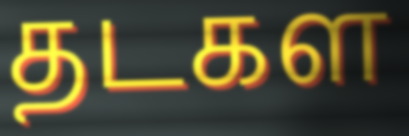
தடகள